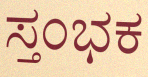
ಸ್ತಂಭಕ